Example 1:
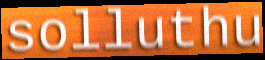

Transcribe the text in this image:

solluthu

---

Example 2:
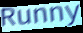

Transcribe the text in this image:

Runny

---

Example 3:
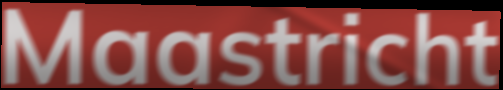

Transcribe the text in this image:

Maastricht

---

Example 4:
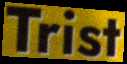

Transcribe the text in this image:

Trist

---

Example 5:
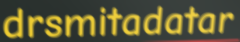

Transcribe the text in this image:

drsmitadatar